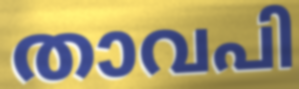
താവപി